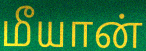
மீயான்